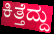
ಕಿತ್ತೆದ್ದು